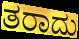
ತರಾದು